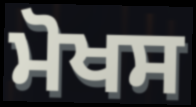
ਮੋਖਸ